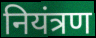
नियंत्रण